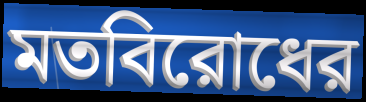
মতবিরোধের